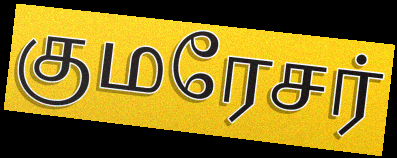
குமரேசர்